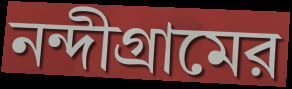
নন্দীগ্রামের